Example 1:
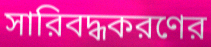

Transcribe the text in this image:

সারিবদ্ধকরণের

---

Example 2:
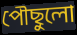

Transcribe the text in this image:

পৌছুলো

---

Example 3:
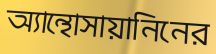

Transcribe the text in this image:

অ্যান্থোসায়ানিনের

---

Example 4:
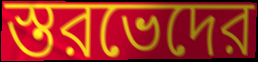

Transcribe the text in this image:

স্তরভেদের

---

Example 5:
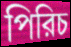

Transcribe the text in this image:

পিরিচ